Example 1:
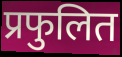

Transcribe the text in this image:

प्रफुलित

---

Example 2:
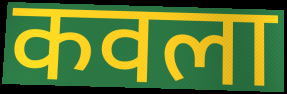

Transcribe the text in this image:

कवला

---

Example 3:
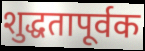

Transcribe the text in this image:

शुद्धतापूर्वक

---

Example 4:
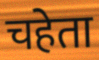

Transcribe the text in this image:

चहेता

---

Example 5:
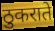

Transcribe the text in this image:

ठुकराते